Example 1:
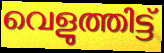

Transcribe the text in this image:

വെളുത്തിട്ട്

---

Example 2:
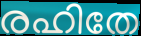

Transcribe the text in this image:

രഹിതേ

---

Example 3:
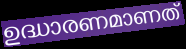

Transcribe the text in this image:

ഉദ്ധാരണമാണത്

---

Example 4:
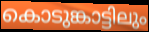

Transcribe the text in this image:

കൊടുങ്കാട്ടിലും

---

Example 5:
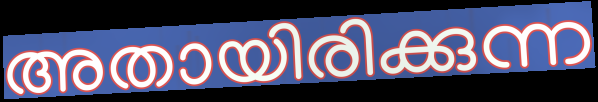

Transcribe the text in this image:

അതായിരിക്കുന്ന